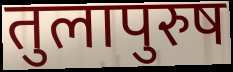
तुलापुरुष